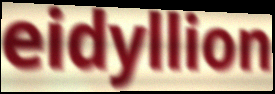
eidyllion